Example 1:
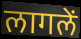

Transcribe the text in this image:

लागलें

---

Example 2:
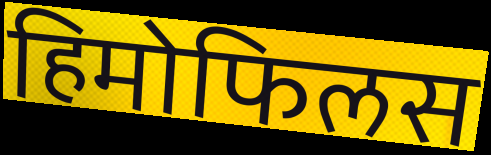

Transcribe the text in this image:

हिमोफिलस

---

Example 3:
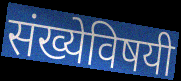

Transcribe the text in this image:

संख्येविषयी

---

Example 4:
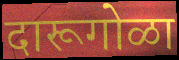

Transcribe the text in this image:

दारूगोळा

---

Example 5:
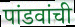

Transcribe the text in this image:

पांडवांची